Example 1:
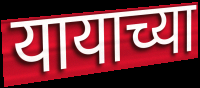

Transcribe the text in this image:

यायाच्या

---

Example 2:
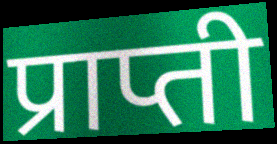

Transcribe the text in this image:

प्राप्ती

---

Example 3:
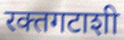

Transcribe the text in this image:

रक्तगटाशी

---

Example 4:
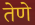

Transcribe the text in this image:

तेणे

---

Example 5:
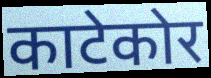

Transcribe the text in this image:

काटेकोर